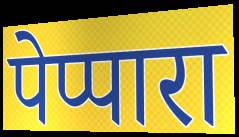
पेप्पारा